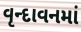
વૃન્દાવનમાં